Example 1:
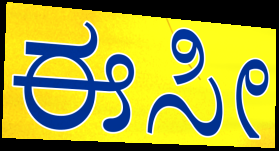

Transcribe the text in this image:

ಈಸೀ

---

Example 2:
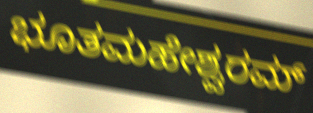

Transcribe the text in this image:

ಭೂತಮಹೇಶ್ವರಮ್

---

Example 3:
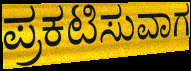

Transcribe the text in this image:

ಪ್ರಕಟಿಸುವಾಗ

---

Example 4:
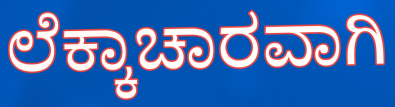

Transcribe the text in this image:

ಲೆಕ್ಕಾಚಾರವಾಗಿ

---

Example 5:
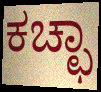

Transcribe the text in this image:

ಕಚ್ಛಾ